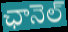
ఛానెల్